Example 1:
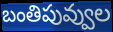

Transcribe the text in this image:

బంతిపువ్వుల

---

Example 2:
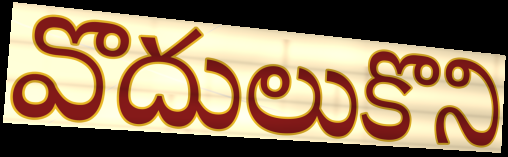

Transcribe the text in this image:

వొదులుకొని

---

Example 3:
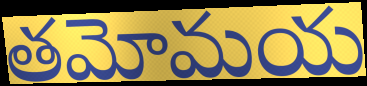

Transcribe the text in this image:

తమోమయ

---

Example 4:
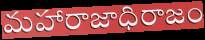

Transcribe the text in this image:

మహారాజాధిరాజం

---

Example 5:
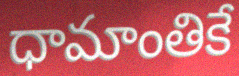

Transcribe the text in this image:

ధామాంతికే